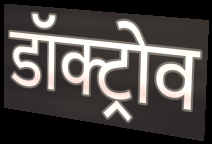
डॉक्ट्रोव